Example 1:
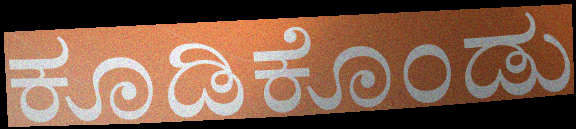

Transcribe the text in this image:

ಕೂಡಿಕೊಂಡು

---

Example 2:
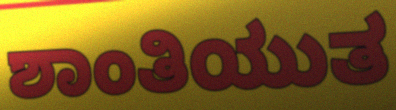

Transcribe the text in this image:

ಶಾಂತಿಯುತ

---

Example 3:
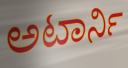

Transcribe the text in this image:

ಅಟಾರ್ನಿ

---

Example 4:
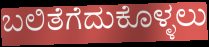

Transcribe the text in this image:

ಬಲಿತೆಗೆದುಕೊಳ್ಳಲು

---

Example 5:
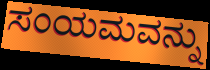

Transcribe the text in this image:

ಸಂಯಮವನ್ನು